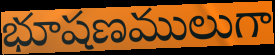
భూషణములుగా